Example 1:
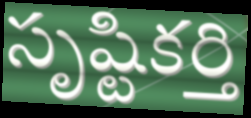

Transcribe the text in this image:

సృష్టికర్తి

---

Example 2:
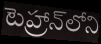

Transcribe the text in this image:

టెహ్రాన్‌లోని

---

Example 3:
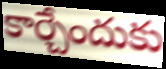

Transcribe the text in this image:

కార్చేందుకు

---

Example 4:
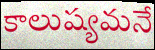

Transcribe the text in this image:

కాలుష్యమనే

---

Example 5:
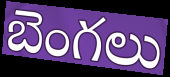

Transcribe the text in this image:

బెంగలు